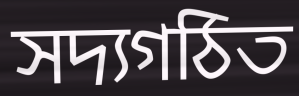
সদ্যগঠিত